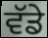
ਵੱਡੇ